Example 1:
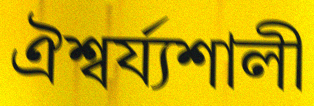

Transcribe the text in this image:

ঐশ্বর্য্যশালী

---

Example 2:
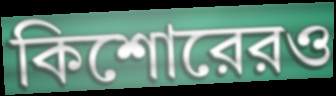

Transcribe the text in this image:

কিশোরেরও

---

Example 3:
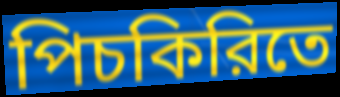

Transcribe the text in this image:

পিচকিরিতে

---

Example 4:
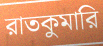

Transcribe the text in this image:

রাতকুমারি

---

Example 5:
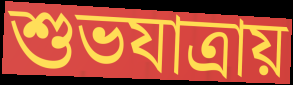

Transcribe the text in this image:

শুভযাত্রায়